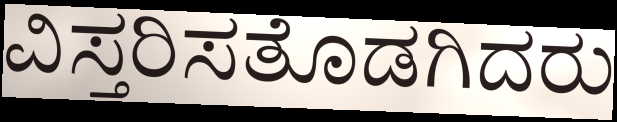
ವಿಸ್ತರಿಸತೊಡಗಿದರು